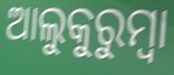
ଆଲୁକୁରୁମ୍ବା